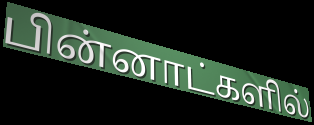
பின்னாட்களில்